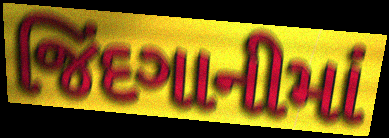
જિંદગાનીમાં